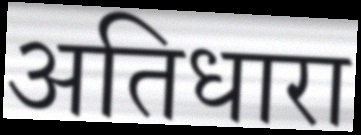
अतिधारा